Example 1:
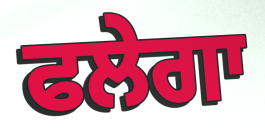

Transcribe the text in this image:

ਫਲੇਗਾ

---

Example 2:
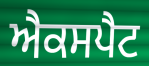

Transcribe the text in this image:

ਐਕਸਪੈਟ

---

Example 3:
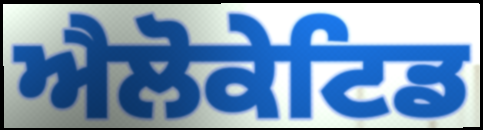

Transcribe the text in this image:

ਐਲੋਕੇਟਿਡ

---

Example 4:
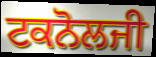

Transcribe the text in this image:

ਟਕਨੋਲਜੀ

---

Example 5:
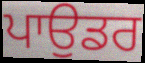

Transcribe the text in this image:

ਪਾਉਡਰ